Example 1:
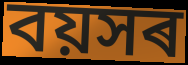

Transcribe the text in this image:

বয়সৰ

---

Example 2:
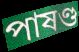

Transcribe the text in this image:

পাষণ্ড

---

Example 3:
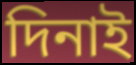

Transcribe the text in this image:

দিনাই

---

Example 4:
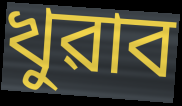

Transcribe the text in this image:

খুৱাব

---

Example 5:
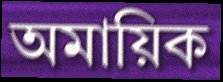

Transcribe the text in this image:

অমায়িক